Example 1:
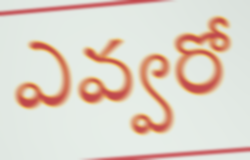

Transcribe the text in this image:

ఎవ్వరో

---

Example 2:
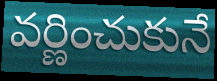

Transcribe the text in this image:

వర్ణించుకునే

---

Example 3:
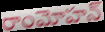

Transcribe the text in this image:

రాంమోహన్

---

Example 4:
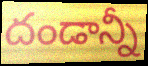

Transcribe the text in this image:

దండాన్నీ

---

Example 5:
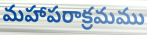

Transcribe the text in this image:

మహాపరాక్రమము